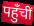
पहुँचीं